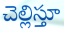
చెల్లిస్తూ